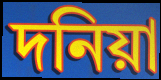
দনিয়া